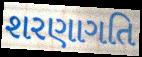
શરણાગતિ